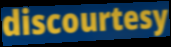
discourtesy